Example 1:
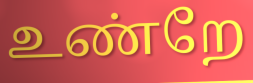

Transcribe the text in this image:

உண்றே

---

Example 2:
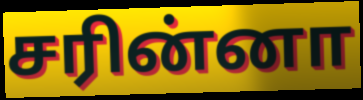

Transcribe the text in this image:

சரின்னா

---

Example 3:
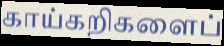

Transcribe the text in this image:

காய்கறிகளைப்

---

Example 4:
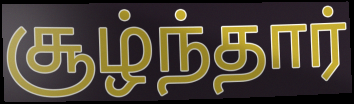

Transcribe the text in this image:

சூழ்ந்தார்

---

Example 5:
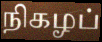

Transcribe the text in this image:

நிகழப்